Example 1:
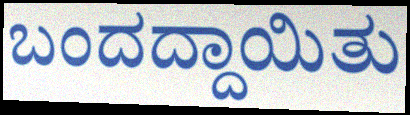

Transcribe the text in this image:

ಬಂದದ್ದಾಯಿತು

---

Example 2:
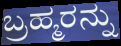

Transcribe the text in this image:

ಬ್ರಹ್ಮರನ್ನು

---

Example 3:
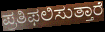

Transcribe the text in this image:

ಪ್ರತಿಫಲಿಸುತ್ತಾರೆ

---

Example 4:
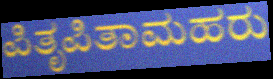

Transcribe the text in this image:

ಪಿತೃಪಿತಾಮಹರು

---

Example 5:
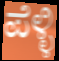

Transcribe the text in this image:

ಪೆಳ್ಳಿ